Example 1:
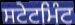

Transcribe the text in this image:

ਸਟੇਟਮਿੰਟ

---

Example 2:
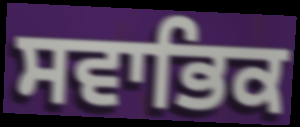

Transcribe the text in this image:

ਸਵਾਭਿਕ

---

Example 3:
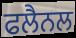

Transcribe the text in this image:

ਫਲੈਨਲ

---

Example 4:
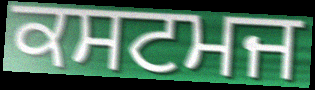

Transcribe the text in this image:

ਕਸਟਮਜ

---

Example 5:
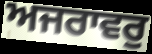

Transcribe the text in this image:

ਅਜਰਾਵਰੁ